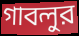
গাবলুর